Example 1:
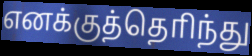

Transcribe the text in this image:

எனக்குத்தெரிந்து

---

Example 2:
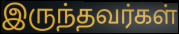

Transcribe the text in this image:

இருந்தவர்கள்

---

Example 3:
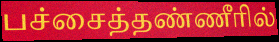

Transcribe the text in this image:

பச்சைத்தண்ணீரில்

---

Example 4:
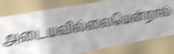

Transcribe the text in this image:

அடையவில்லையென்றால்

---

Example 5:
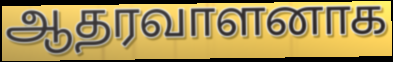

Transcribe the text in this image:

ஆதரவாளனாக